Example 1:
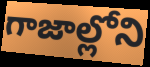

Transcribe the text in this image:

గాజాల్లోని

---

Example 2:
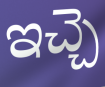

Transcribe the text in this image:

ఇచ్చె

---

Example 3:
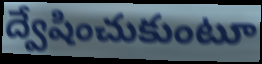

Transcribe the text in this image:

ద్వేషించుకుంటూ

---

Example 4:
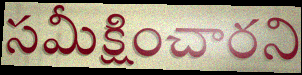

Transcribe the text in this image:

సమీక్షించారని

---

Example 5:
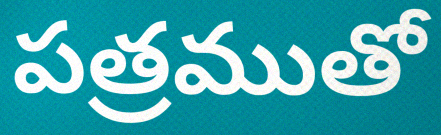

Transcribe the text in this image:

పత్రముతో